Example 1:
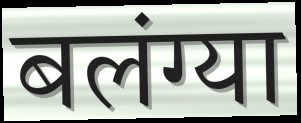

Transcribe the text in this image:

बलंग्या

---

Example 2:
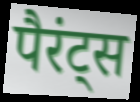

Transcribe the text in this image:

पैरंट्स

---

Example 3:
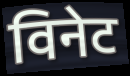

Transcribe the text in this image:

विनेट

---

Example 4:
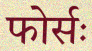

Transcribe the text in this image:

फोर्सः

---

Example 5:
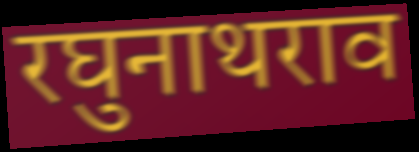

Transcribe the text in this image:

रघुनाथराव